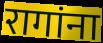
रागांना